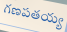
గణపతయ్య